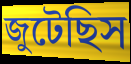
জুটেছিস